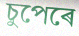
চুপেৰে